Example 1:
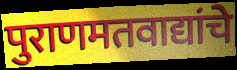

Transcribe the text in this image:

पुराणमतवाद्यांचे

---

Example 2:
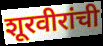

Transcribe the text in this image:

शूरवीरांची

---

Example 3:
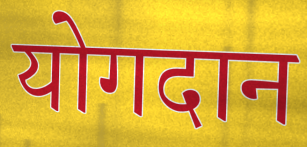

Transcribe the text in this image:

योगदान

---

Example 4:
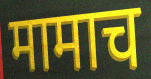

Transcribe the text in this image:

मामाच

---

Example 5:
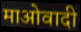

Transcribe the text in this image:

माओवादी